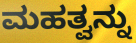
ಮಹತ್ವನ್ನು